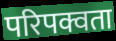
परिपक्वता